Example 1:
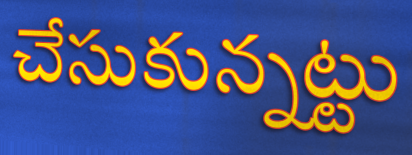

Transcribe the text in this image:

చేసుకున్నట్టు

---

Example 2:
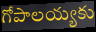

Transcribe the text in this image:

గోపాలయ్యకు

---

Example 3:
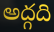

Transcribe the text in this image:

అద్గది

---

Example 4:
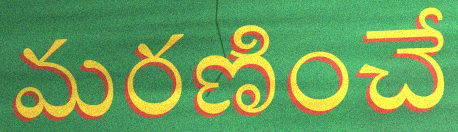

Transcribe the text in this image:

మరణించే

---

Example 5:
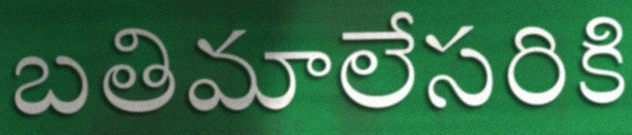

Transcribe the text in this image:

బతిమాలేసరికి